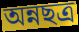
অন্নছত্র